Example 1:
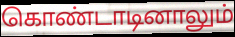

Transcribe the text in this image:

கொண்டாடினாலும்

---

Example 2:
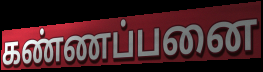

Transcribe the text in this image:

கண்ணப்பனை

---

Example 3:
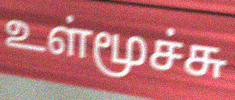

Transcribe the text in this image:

உள்மூச்சு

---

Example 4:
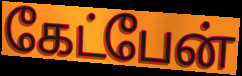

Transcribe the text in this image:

கேட்பேன்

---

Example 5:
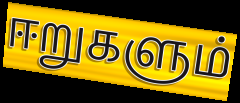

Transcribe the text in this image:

ஈறுகளும்